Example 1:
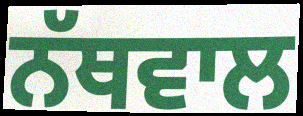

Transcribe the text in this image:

ਨੱਥਵਾਲ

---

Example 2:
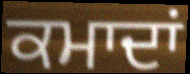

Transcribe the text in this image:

ਕਮਾਦਾਂ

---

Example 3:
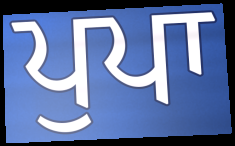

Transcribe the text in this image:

ਪੁਪਾ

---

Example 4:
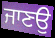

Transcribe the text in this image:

ਜਾਣਉ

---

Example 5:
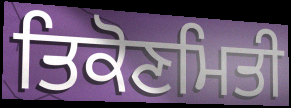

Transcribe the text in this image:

ਤਿਕੋਣਮਿਤੀ